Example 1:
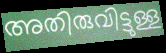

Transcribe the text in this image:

അതിരുവിട്ടുള്ള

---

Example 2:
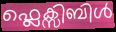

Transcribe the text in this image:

ഫ്ലെക്സിബിൾ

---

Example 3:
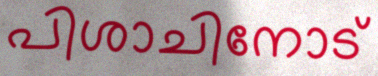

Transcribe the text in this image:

പിശാചിനോട്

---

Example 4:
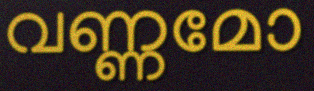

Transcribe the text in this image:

വണ്ണമോ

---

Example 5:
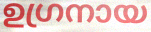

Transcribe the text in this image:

ഉഗ്രനായ